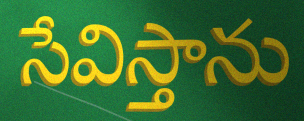
సేవిస్తాను